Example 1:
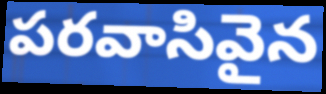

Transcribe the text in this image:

పరవాసివైన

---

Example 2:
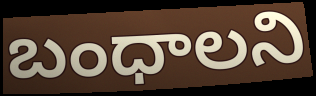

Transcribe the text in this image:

బంధాలని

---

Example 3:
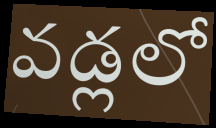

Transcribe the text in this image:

వడ్లలో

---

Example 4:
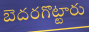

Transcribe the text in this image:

బెదరగొట్టారు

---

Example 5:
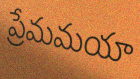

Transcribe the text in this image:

ప్రేమమయా